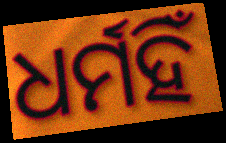
ଧର୍ମହିଁ